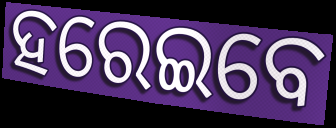
ହରେଇବେ